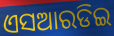
ଏସଆରଡିଇ